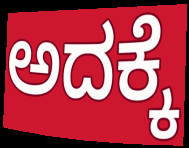
ಅದಕ್ಕೆ